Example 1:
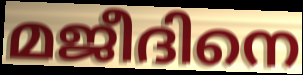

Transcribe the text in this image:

മജീദിനെ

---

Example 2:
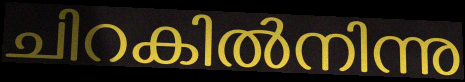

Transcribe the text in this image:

ചിറകിൽനിന്നു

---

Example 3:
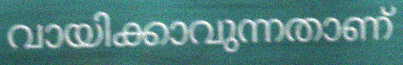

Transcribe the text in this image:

വായിക്കാവുന്നതാണ്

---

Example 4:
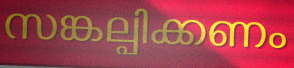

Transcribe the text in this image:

സങ്കല്പിക്കണം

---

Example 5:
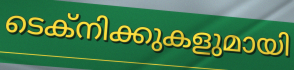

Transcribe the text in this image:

ടെക്നിക്കുകളുമായി